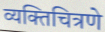
व्यक्तिचित्रणे